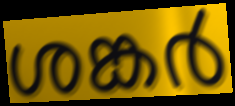
ശങ്കർ